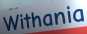
Withania